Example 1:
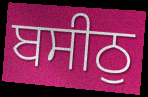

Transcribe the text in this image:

ਬਸੀਠੁ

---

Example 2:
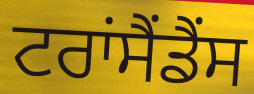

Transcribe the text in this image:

ਟਰਾਂਸੈਂਡੈਂਸ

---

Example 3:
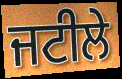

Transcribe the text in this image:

ਜਟੀਲੇ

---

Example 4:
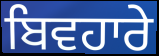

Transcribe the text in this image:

ਬਿਵਹਾਰੇ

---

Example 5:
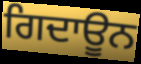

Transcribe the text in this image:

ਗਿਦਾਊਨ